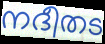
നദീതട